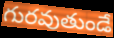
గురవుతుండే